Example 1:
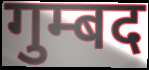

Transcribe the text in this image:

गुम्बद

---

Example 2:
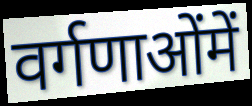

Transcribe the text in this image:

वर्गणाओंमें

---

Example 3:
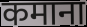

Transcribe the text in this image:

कमाना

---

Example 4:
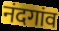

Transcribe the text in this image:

नंदगांव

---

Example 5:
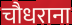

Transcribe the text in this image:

चौधराना